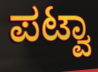
ಪಟ್ವಾ